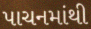
પાચનમાંથી